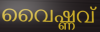
വൈഷ്ണവ്